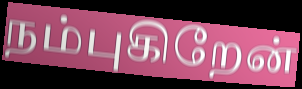
நம்புகிறேன்